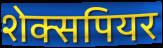
शेक्सपियर